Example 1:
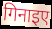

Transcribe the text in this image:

गिनाइए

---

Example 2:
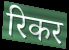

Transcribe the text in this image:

रिकर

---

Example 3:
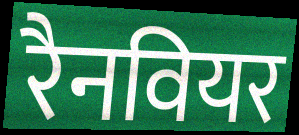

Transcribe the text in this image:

रैनवियर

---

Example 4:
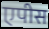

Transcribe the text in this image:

एपीस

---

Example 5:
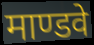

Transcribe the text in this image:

माण्डवे